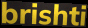
brishti